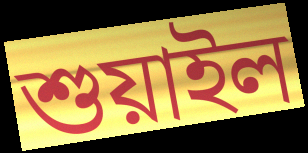
শুয়াইল